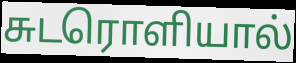
சுடரொளியால்